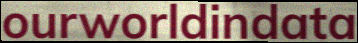
ourworldindata